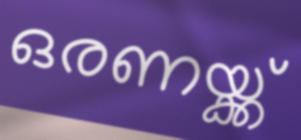
ഒരണയ്ക്ക്